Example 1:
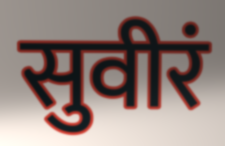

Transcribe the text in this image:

सुवीरं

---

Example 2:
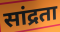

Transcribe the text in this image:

सांद्रता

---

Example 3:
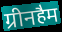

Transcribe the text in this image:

ग्रीनहैम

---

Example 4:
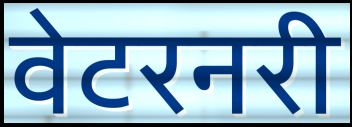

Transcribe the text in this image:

वेटरनरी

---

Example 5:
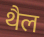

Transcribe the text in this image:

थैल